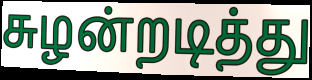
சுழன்றடித்து